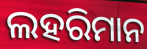
ଲହରିମାନ